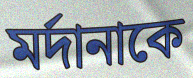
মর্দানাকে